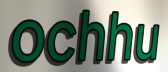
ochhu